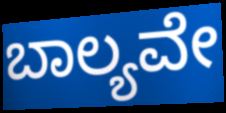
ಬಾಲ್ಯವೇ